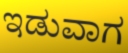
ಇಡುವಾಗ